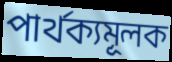
পাৰ্থক্যমূলক